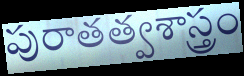
పురాతత్వశాస్త్రం